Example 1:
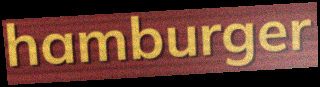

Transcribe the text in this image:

hamburger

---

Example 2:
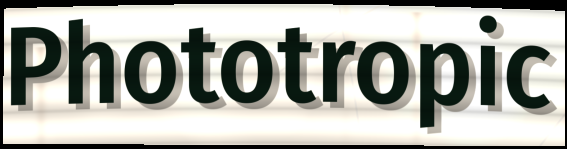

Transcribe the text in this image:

Phototropic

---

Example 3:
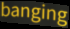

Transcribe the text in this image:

banging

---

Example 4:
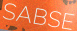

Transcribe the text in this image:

SABSE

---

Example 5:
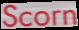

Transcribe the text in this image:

Scorn